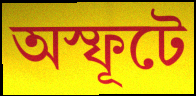
অস্ফূটে